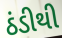
ઠંડીથી